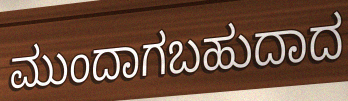
ಮುಂದಾಗಬಹುದಾದ